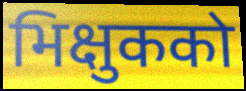
भिक्षुकको